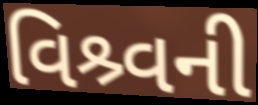
વિશ્ર્વની